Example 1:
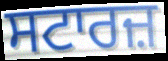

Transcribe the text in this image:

ਸਟਾਰਜ਼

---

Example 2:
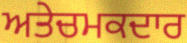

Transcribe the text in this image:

ਅਤੇਚਮਕਦਾਰ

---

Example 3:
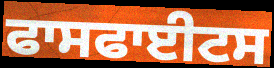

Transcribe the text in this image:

ਫਾਸਫਾਈਟਸ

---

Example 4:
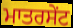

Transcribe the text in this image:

ਮਾਤਰਸੇਂਟ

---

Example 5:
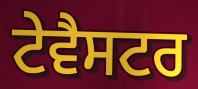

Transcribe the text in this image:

ਟੇਵੈਸਟਰ